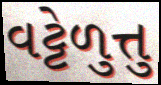
વટ્ટેળુત્તુ